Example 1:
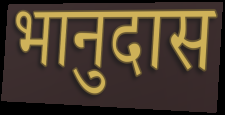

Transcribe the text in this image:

भानुदास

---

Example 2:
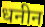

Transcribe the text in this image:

धनीन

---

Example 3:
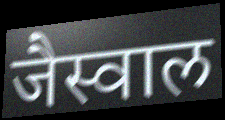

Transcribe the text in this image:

जैस्वाल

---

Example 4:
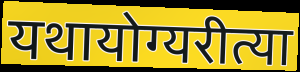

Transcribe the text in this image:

यथायोग्यरीत्या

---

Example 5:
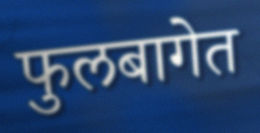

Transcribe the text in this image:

फुलबागेत